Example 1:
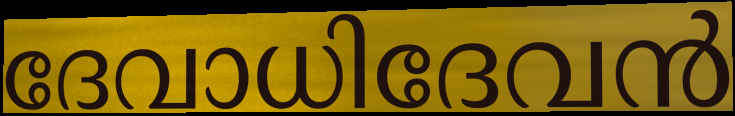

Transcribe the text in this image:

ദേവാധിദേവൻ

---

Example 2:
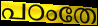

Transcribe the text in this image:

പഠംതേ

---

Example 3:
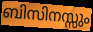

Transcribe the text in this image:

ബിസിനസ്സും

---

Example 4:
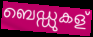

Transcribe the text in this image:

ബെഡ്ഡുകള്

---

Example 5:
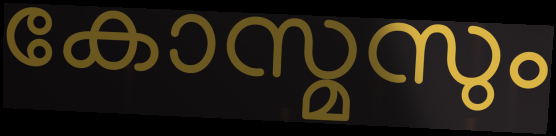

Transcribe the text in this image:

കോസ്മസും